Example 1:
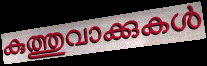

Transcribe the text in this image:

കുത്തുവാക്കുകൾ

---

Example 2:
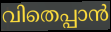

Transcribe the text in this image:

വിതെപ്പാൻ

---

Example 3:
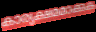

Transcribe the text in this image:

കാര്യക്ഷമമാക്കുക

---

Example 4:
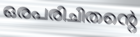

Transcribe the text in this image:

ഒരപരിചിതന്റെ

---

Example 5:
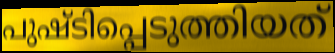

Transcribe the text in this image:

പുഷ്ടിപ്പെടുത്തിയത്